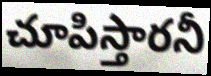
చూపిస్తారనీ